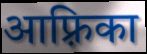
आफ़्रिका